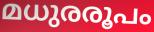
മധുരരൂപം